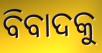
ବିବାଦକୁ